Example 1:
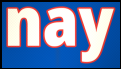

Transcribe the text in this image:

nay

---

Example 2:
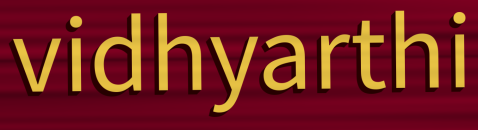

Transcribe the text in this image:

vidhyarthi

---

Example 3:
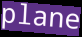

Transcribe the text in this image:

plane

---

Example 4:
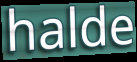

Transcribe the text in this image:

halde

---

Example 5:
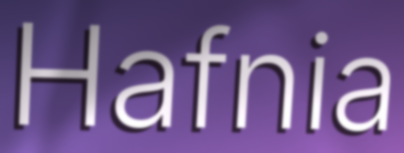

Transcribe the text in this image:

Hafnia